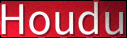
Houdu